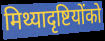
मिथ्यादृष्टियोंको